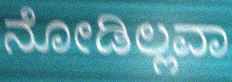
ನೋಡಿಲ್ಲವಾ